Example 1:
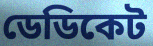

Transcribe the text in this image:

ডেডিকেট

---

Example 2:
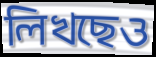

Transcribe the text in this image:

লিখছেও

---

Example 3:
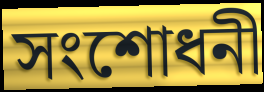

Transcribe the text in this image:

সংশোধনী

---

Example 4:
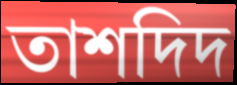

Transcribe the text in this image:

তাশদিদ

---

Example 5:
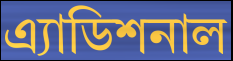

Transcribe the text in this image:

এ্যাডিশনাল